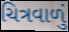
ચિત્રવાળું